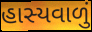
હાસ્યવાળું